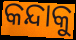
କନ୍ଦାକୁ